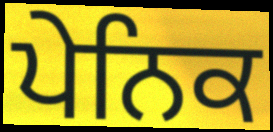
ਪੇਨਿਕ